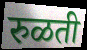
रुळती